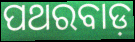
ପଥରବାଡ଼